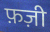
फ़ज़ी